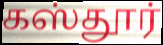
கஸ்தூர்